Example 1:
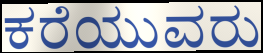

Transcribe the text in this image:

ಕರೆಯುವರು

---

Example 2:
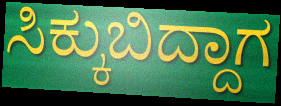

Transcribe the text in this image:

ಸಿಕ್ಕುಬಿದ್ದಾಗ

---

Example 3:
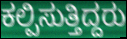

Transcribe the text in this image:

ಕಲ್ಪಿಸುತ್ತಿದ್ದರು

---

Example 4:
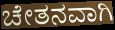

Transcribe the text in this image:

ಚೇತನವಾಗಿ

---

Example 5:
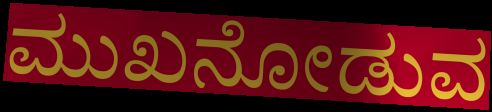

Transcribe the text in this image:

ಮುಖನೋಡುವ